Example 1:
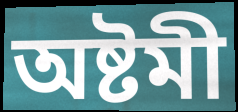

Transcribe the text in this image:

অষ্টমী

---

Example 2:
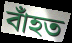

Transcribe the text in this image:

বাঁহত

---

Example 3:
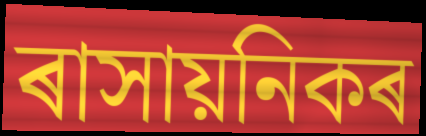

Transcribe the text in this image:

ৰাসায়নিকৰ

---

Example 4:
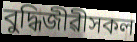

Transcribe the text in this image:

বুদ্ধিজীৱীসকল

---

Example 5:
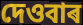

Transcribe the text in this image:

দেওবাৰ